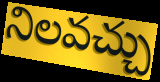
నిలవచ్చు